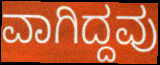
ವಾಗಿದ್ದವು